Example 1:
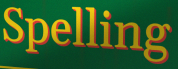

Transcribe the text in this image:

Spelling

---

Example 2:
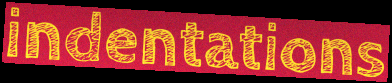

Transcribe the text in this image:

indentations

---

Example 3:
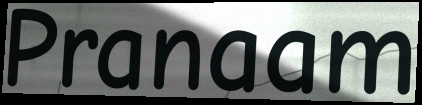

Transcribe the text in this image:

Pranaam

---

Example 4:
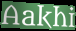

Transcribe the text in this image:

Aakhi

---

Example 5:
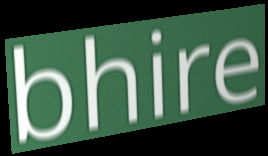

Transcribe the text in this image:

bhire